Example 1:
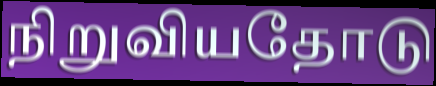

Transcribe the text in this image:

நிறுவியதோடு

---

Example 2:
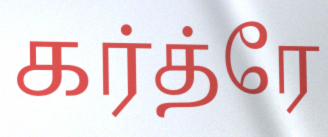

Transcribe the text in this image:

கர்த்ரே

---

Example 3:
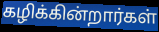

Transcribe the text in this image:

கழிக்கின்றார்கள்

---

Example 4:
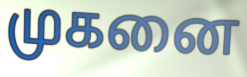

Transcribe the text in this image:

முகனை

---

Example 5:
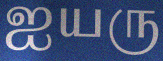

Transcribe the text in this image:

ஐயரு